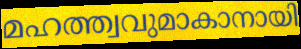
മഹത്ത്വവുമാകാനായി